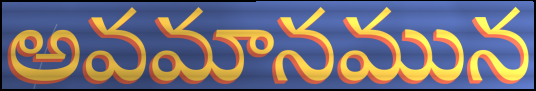
అవమానమున